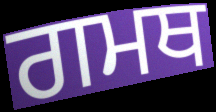
ਗਮਥ